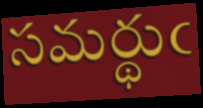
సమర్థుఁ